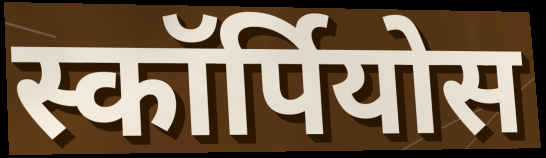
स्कॉर्पियोस